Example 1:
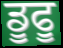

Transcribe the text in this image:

ਡੂਫੂ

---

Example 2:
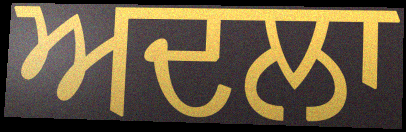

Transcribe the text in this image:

ਅਦਲਾ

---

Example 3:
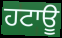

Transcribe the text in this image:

ਹਟਾਊ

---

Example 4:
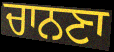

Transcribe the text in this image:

ਚਾਨਣਾ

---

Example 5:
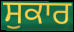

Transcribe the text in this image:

ਸੁਕਾਰ